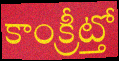
కాంక్రీట్తో